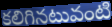
కలిగినటువంటి